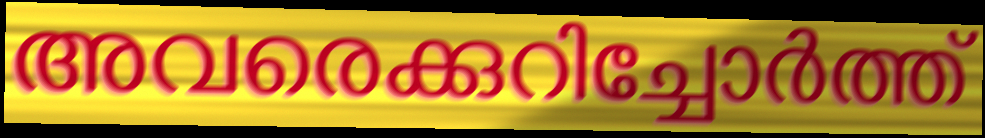
അവരെക്കുറിച്ചോർത്ത്